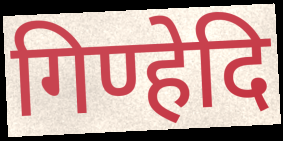
गिण्हेदि